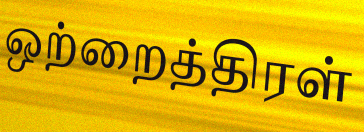
ஒற்றைத்திரள்